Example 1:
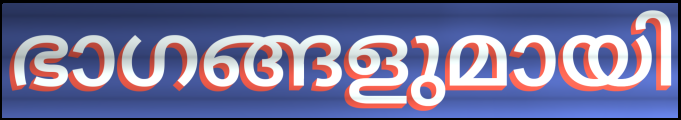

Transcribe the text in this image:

ഭാഗങ്ങളുമായി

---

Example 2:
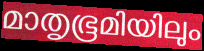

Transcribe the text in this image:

മാതൃഭൂമിയിലും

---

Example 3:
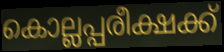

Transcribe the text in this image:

കൊല്ലപ്പരീക്ഷക്ക്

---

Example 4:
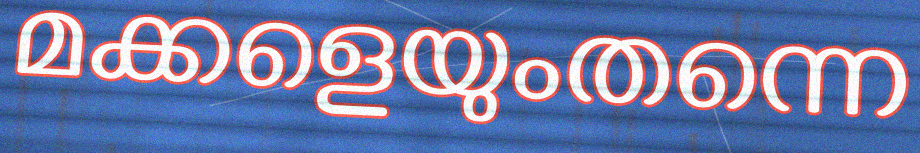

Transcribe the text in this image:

മക്കളെയുംതന്നെ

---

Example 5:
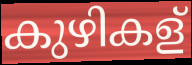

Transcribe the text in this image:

കുഴികള്